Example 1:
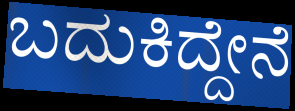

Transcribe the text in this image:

ಬದುಕಿದ್ದೇನೆ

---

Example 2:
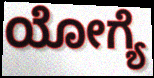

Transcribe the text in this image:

ಯೋಗ್ಯೆ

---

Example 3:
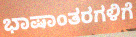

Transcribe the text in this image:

ಭಾಷಾಂತರಗಳಿಗೆ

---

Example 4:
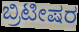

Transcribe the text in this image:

ಬ್ರಿಟೀಷರ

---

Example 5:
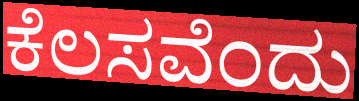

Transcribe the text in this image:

ಕೆಲಸವೆಂದು